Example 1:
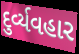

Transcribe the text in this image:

દુર્વ્યવહાર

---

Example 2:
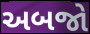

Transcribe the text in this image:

અબજો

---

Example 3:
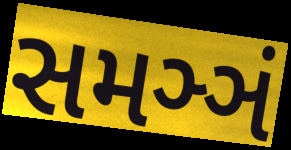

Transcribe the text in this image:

સમઞ્ઞં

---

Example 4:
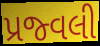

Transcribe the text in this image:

પ્રજ્વલી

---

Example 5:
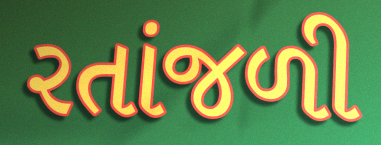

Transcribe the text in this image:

રતાંજળી